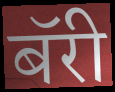
बॅरी